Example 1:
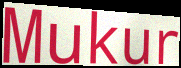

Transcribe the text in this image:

Mukur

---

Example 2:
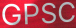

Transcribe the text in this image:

GPSC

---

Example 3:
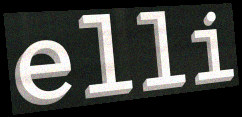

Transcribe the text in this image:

elli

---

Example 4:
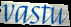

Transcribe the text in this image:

vastu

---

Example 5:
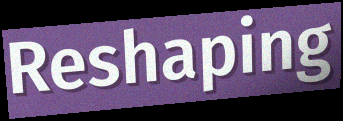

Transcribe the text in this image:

Reshaping